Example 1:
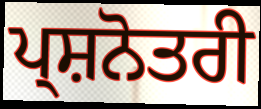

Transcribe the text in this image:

ਪ੍ਸ਼ਨੋਤਰੀ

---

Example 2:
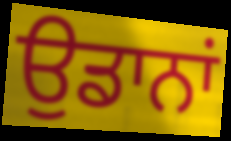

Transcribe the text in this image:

ਉਡਾਨਾਂ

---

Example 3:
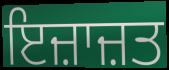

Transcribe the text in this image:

ਇਜ਼ਾਜ਼ਤ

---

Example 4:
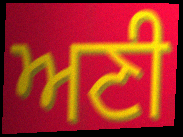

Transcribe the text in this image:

ਅਣੀ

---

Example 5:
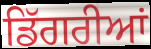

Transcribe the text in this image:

ਡਿੱਗਰੀਆਂ